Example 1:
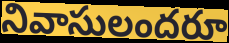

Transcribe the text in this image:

నివాసులందరూ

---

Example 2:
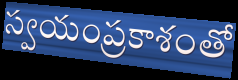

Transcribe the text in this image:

స్వయంప్రకాశంతో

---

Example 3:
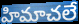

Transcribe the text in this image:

హిమాచలే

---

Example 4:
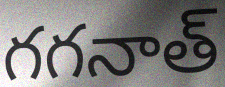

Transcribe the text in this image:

గగనాత్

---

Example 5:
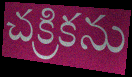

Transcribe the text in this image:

చక్రికను